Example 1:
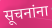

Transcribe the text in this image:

सूचनांना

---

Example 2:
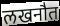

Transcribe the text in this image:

लखनौत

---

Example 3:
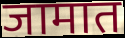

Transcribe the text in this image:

जामात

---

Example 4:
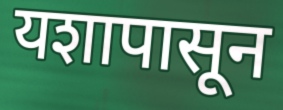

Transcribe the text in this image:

यशापासून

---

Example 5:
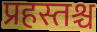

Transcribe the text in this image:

प्रहस्तश्च